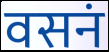
वसनं